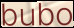
bubo